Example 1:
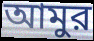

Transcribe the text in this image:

আমুর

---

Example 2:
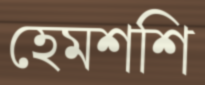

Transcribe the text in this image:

হেমশশি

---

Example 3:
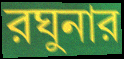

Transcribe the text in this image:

রঘুনার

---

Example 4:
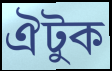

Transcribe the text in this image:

ঐটুক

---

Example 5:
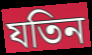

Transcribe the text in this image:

যতিন